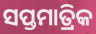
ସପ୍ତମାତ୍ରିକ